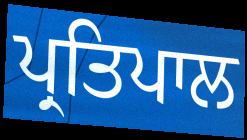
ਪ੍ਰਤਿਪਾਲ